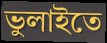
ভুলাইতে